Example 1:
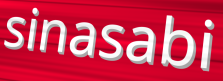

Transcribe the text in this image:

sinasabi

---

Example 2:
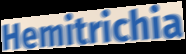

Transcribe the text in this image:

Hemitrichia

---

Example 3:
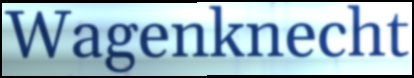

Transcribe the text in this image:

Wagenknecht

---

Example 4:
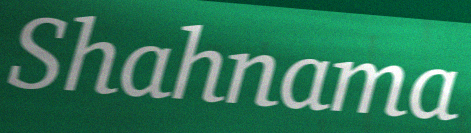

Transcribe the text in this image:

Shahnama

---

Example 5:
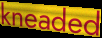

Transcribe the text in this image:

kneaded